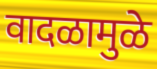
वादळामुळे